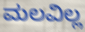
ಮಲವಿಲ್ಲ